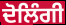
ਦੋਲਿੰਗੀ